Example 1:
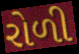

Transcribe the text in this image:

રોળી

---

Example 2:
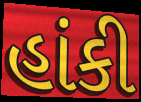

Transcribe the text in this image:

હાંકી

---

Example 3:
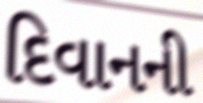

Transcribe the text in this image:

દિવાનની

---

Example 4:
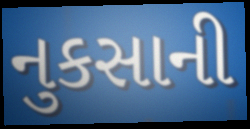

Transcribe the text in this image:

નુકસાની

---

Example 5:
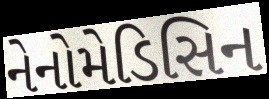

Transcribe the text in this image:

નેનોમેડિસિન